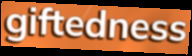
giftedness